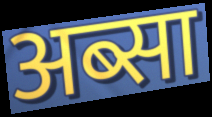
अब्सा